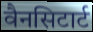
वैनसिटार्ट